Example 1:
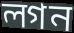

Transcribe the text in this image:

লগন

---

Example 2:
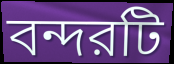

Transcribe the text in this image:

বন্দরটি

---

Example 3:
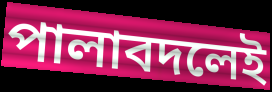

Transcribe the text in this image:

পালাবদলেই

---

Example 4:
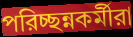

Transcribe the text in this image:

পরিচ্ছন্নকর্মীরা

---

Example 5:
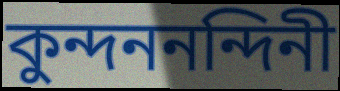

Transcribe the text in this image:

কুন্দননন্দিনী